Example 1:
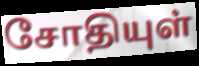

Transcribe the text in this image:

சோதியுள்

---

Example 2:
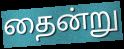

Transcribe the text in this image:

தைன்று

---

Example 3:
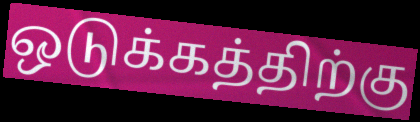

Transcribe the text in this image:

ஒடுக்கத்திற்கு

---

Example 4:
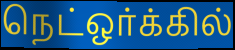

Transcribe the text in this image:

நெட்ஒர்க்கில்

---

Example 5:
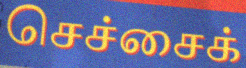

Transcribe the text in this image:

செச்சைக்